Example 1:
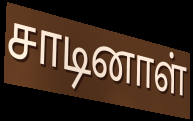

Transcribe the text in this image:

சாடினாள்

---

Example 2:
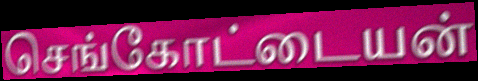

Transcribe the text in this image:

செங்கோட்டையன்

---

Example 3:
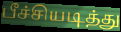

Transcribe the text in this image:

பீச்சியடித்து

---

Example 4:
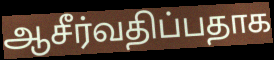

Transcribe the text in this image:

ஆசீர்வதிப்பதாக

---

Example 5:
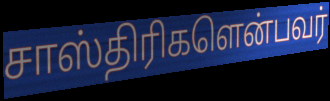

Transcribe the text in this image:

சாஸ்திரிகளென்பவர்